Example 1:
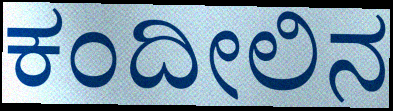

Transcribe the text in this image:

ಕಂದೀಲಿನ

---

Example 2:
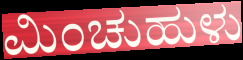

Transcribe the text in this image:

ಮಿಂಚುಹುಳು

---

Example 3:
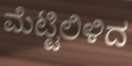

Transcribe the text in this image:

ಮೆಟ್ಟಿಲಿಳಿದ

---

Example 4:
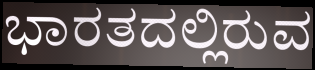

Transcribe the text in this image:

ಭಾರತದಲ್ಲಿರುವ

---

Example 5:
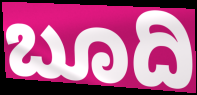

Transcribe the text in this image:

ಬೂದಿ